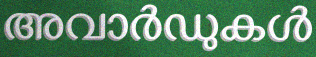
അവാർഡുകൾ